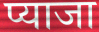
प्याजा